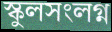
স্কুলসংলগ্ন